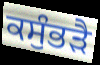
ਕਸੁੰਭੜੈ